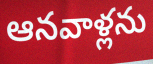
ఆనవాళ్లను